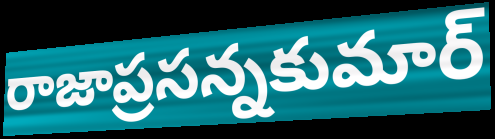
రాజాప్రసన్నకుమార్